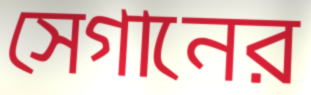
সেগানের